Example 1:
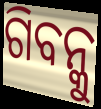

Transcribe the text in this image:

ଗିବନ୍କୁ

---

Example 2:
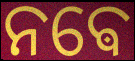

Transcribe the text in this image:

ନଵେ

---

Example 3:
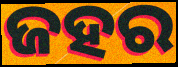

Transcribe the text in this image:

ଜହର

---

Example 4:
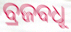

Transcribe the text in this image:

ବ୍ରଜବଧୂ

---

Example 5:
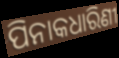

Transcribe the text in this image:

ପିନାକଧାରିଣୀ